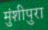
मुंशीपुरा